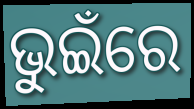
ଭୁଇଁରେ